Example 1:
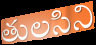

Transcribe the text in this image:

తులసిని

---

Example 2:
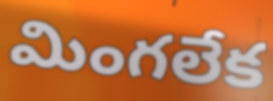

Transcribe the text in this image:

మింగలేక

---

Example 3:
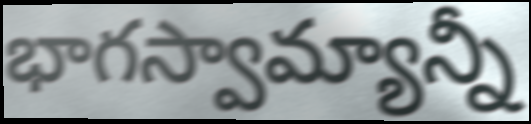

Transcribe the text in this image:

భాగస్వామ్యాన్నీ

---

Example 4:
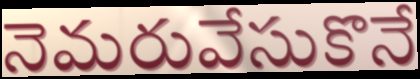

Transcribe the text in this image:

నెమరువేసుకొనే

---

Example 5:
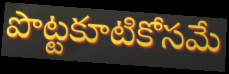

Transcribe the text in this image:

పొట్టకూటికోసమే